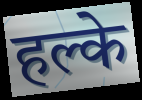
हल्‍के